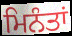
ਮਿਨੰਤਾਂ